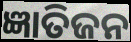
ଜ୍ଞାତିଜନ